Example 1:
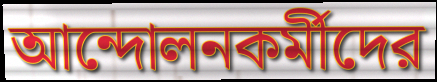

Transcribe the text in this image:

আন্দোলনকর্মীদের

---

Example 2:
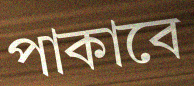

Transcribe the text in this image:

পাকাবে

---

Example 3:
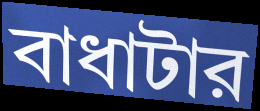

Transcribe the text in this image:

বাধাটার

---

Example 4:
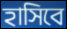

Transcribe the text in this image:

হাসিবে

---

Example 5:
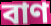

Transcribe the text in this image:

বাণ